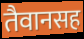
तैवानसह